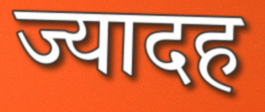
ज्यादह